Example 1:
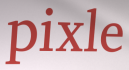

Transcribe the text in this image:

pixle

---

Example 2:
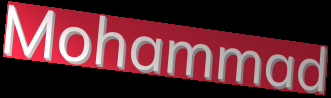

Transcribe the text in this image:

Mohammad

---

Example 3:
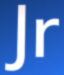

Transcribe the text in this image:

Jr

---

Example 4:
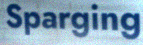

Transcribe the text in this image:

Sparging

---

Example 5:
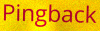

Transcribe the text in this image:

Pingback